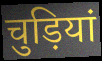
चुड़ियां